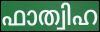
ഫാത്വിഹ